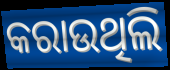
କରାଉଥିଲି